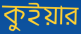
কুইয়ার